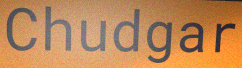
Chudgar